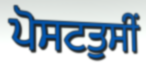
ਪੋਸਟਤੁਸੀਂ